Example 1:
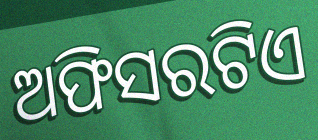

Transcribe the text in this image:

ଅଫିସରଟିଏ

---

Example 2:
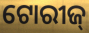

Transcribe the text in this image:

ଟୋରୀଜ୍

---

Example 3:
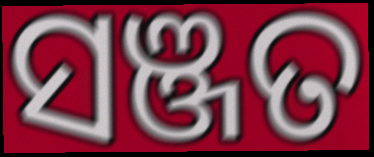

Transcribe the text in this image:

ସଞ୍ଜତ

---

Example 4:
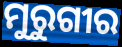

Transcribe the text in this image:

ମୁରୁଗୀର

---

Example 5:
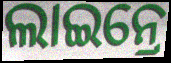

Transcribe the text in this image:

ଲାଇନ୍ରେ